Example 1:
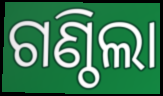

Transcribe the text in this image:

ଗଣ୍ଠିଲା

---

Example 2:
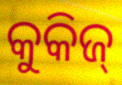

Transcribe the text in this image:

କୁକିଜ୍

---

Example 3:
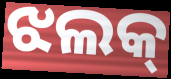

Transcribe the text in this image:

ଝଲକ୍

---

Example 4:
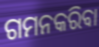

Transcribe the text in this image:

ଗମନକରିବା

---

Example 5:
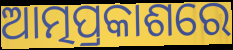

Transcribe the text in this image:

ଆତ୍ମପ୍ରକାଶରେ